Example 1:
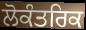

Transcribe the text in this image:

ਲੋਕੰਤਰਿਕ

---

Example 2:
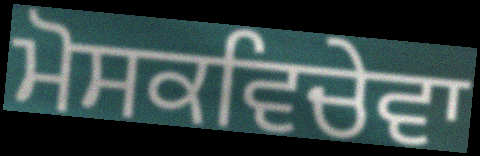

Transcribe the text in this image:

ਮੋਸਕਵਿਚੇਵਾ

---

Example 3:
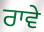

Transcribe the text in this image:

ਰਾਵੇ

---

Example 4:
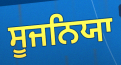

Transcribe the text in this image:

ਸੂਜਨਿਯਾ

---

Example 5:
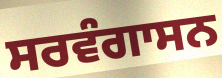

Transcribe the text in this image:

ਸਰਵੰਗਾਸਨ